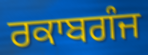
ਰਕਾਬਗੰਜ